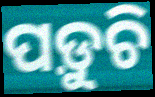
ପଡ଼ୁଚି